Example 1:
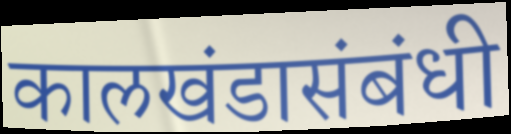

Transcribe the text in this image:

कालखंडासंबंधी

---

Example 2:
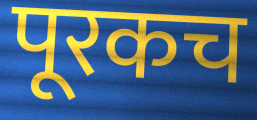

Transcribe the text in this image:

पूरकच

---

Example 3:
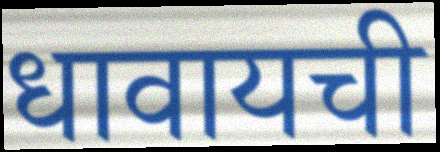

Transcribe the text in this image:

धावायची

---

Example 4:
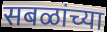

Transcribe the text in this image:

सबळांच्या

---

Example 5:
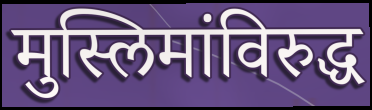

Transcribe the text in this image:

मुस्लिमांविरुद्ध